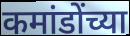
कमांडोंच्या